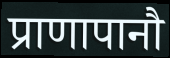
प्राणापानौ